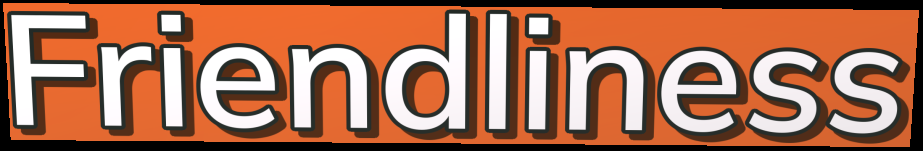
Friendliness